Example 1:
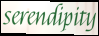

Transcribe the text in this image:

serendipity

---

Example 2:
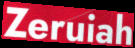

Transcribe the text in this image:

Zeruiah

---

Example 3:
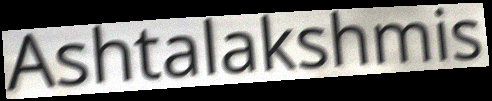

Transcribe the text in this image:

Ashtalakshmis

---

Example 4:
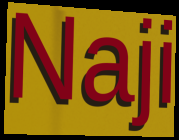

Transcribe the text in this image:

Naji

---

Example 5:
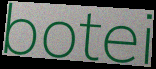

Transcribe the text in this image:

botei